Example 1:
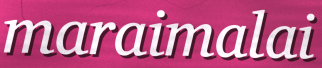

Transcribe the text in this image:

maraimalai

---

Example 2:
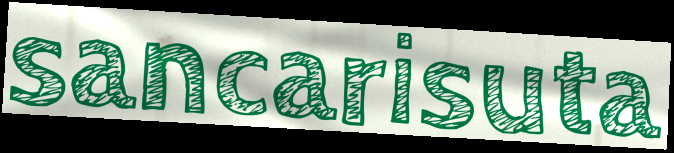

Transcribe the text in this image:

sancarisuta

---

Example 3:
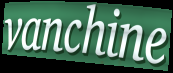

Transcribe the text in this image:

vanchine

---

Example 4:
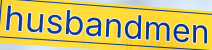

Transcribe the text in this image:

husbandmen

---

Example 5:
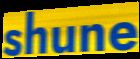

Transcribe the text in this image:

shune